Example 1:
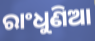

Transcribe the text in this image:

ରାଂଧୁଣିଆ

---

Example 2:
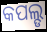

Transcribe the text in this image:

କପଲ୍ଡ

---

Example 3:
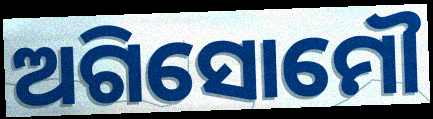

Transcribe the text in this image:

ଅଗିସୋମୌ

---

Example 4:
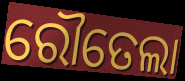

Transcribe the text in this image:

ରୌତେଲା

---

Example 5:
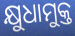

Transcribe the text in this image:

କ୍ଷୁଧାମୁକ୍ତ